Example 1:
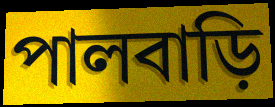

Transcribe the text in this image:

পালবাড়ি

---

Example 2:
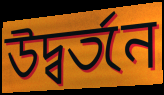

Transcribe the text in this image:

উদ্বর্তনে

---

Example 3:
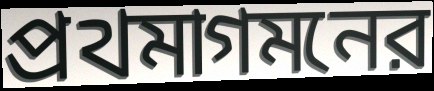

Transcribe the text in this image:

প্রথমাগমনের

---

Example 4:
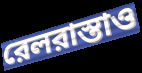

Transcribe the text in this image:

রেলরাস্তাও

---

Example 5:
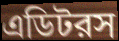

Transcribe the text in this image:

এডিটরস